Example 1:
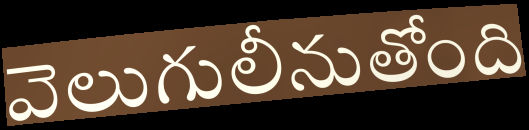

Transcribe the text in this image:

వెలుగులీనుతోంది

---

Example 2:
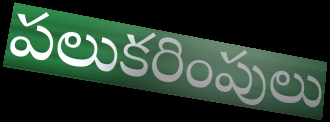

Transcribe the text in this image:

పలుకరింపులు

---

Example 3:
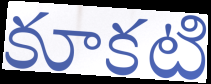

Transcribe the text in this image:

కూకటి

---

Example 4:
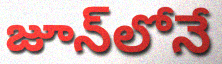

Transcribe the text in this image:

జూన్‌లోనే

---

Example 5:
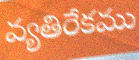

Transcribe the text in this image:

వ్యతిరేకము